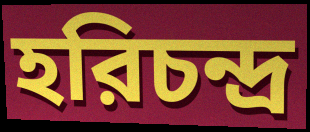
হরিচন্দ্র